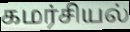
கமர்சியல்